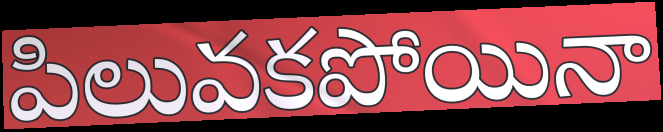
పిలువకపోయినా